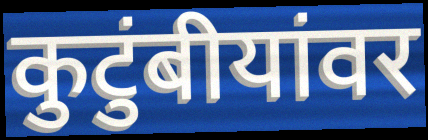
कुटुंबीयांवर